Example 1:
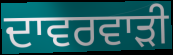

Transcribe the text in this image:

ਦਾਵਰਵਾੜੀ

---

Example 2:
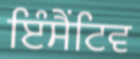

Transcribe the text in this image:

ਇੰਸੈਂਟਿਵ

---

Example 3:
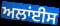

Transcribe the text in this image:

ਅਲਾਂਈਸ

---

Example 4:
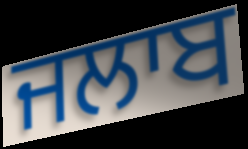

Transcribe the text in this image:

ਜਲਾਬ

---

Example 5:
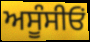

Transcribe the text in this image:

ਅਸੂੰਸੀਓਂ